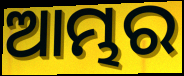
ଆମ୍ଭର